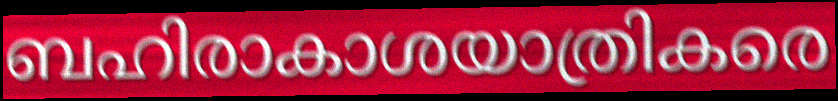
ബഹിരാകാശയാത്രികരെ